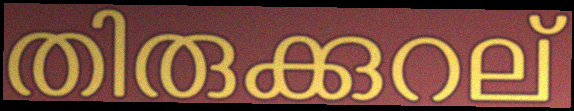
തിരുക്കുറല്